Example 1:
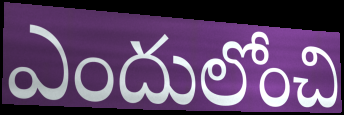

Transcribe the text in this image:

ఎందులోంచి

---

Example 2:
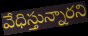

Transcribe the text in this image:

వేధిస్తున్నారని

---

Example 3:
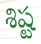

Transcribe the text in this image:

శిష్ట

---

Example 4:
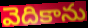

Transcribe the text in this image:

వెదికాను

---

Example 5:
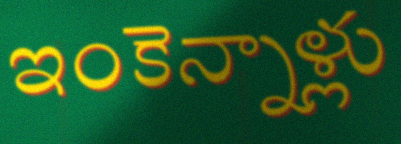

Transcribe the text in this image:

ఇంకెన్నాళ్లు